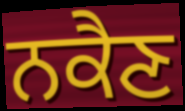
ਨਕੈਣ